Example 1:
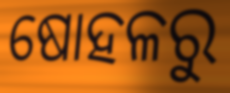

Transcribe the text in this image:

ଷୋହଳରୁ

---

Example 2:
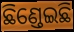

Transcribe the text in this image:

ଛିଣ୍ଡେଇଛି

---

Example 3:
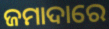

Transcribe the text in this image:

ଜମାଦାରେ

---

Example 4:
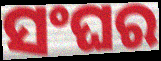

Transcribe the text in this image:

ସଂଘର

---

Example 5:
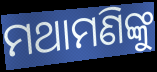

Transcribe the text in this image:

ମଥାମଣିଙ୍କୁ